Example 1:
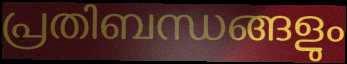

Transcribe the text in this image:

പ്രതിബന്ധങ്ങളും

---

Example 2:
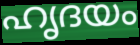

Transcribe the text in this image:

ഹൃദയം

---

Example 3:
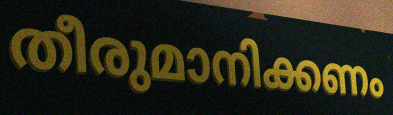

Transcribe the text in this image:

തീരുമാനിക്കണം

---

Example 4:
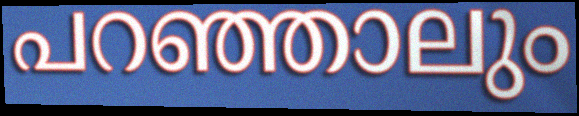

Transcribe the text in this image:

പറഞ്ഞാലും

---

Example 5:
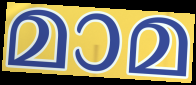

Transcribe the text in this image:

മാമ